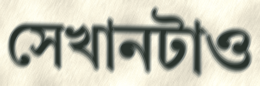
সেখানটাও